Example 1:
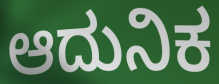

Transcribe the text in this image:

ಆದುನಿಕ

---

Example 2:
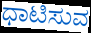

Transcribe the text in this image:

ಧಾಟಿಸುವ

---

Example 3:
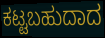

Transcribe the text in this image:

ಕಟ್ಟಬಹುದಾದ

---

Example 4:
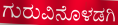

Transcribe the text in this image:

ಗುರುವಿನೊಳಡಗಿ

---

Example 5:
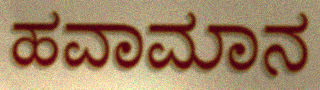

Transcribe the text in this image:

ಹವಾಮಾನ